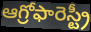
ఆగ్రోఫారెస్ట్రీ